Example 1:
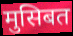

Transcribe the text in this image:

मुसिबत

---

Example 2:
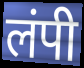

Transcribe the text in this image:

लंपी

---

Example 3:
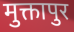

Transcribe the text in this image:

मुक्तापुर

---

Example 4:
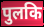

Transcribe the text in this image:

पुलकि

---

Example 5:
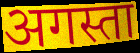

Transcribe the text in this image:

अगस्ता